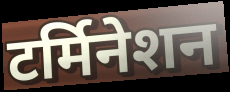
टर्मिनेशन